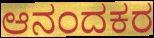
ಆನಂದಕರ